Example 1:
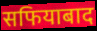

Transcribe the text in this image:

सफियाबाद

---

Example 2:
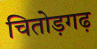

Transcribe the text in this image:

चितोड़गढ़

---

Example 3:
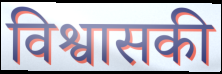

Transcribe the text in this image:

विश्वासकी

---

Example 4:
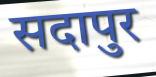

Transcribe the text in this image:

सदापुर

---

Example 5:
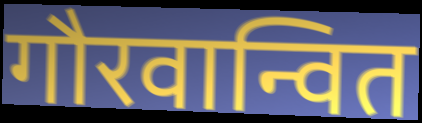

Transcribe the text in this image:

गौरवान्वित